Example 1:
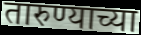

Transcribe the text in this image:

तारुण्याच्या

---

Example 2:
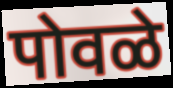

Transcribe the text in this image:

पोवळे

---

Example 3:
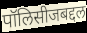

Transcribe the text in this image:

पॉलिसीजबद्दल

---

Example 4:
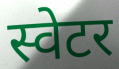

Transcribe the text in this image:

स्वेटर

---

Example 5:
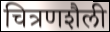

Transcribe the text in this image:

चित्रणशैली